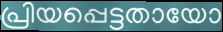
പ്രിയപ്പെട്ടതായോ